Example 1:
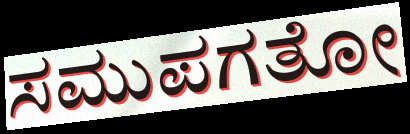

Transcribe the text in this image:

ಸಮುಪಗತೋ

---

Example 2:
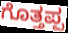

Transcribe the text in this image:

ಗೊತ್ತಪ್ಪ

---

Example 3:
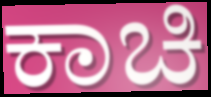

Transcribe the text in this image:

ಕಾಚಿ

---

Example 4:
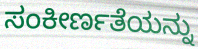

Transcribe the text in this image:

ಸಂಕೀರ್ಣತೆಯನ್ನು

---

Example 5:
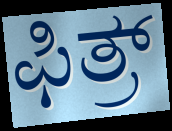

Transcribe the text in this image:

ಫಿತ್ರ್